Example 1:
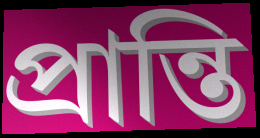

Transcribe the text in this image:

প্রান্তি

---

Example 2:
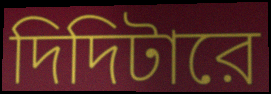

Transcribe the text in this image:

দিদিটারে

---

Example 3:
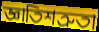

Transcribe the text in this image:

জ্ঞাতিশত্রুতা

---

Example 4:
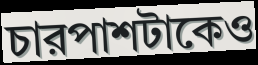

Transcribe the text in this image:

চারপাশটাকেও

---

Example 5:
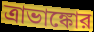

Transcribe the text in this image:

ত্রাভাঙ্কোর